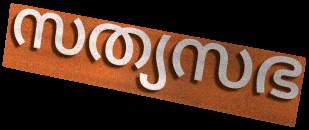
സത്യസഭ